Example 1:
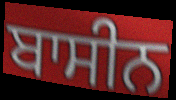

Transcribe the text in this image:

ਬਾਸੀਨ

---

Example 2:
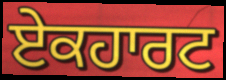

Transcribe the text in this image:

ਏਕਹਾਰਟ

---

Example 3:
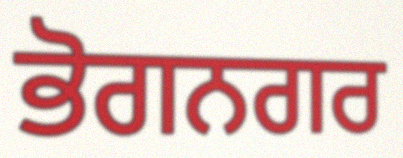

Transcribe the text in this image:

ਭੋਗਨਗਰ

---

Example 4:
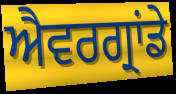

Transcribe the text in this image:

ਐਵਰਗ੍ਰਾਂਡੇ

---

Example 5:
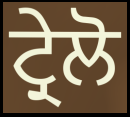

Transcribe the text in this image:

ਟ੍ਰੇਲੋ